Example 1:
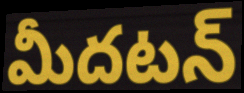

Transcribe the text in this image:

మీదటన్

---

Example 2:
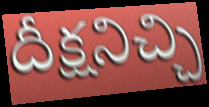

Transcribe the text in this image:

దీక్షనిచ్చి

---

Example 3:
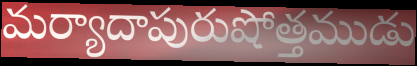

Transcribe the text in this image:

మర్యాదాపురుషోత్తముడు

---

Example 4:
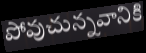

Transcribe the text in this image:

పోవుచున్నవానికి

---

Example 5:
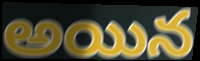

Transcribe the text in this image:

అయిన